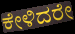
ಕೇಳಿದರೇ